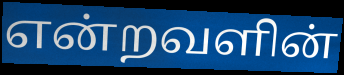
என்றவளின்